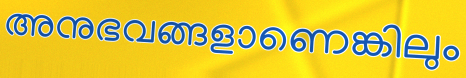
അനുഭവങ്ങളാണെങ്കിലും